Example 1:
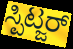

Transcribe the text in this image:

ಸ್ಪಿಟ್ಜರ್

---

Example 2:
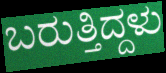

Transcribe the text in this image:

ಬರುತ್ತಿದ್ದಳು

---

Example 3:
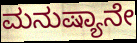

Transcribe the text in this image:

ಮನುಷ್ಯಾನೇ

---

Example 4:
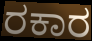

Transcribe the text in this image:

ರಕಾರ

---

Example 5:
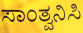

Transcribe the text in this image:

ಸಾಂತ್ವನಿಸಿ